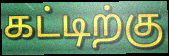
கட்டிற்கு